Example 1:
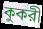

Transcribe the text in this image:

কুকরী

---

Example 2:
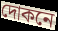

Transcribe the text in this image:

দোকনে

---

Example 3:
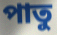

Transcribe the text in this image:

পাতু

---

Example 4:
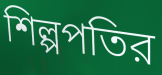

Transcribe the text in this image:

শিল্পপতির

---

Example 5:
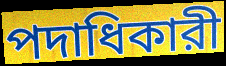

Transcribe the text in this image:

পদাধিকারী